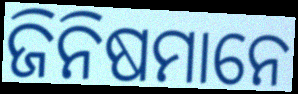
ଜିନିଷମାନେ